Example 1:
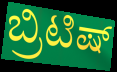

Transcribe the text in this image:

ಬ್ರಿಟಿಷ್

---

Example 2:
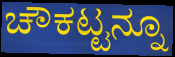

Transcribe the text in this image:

ಚೌಕಟ್ಟನ್ನೂ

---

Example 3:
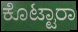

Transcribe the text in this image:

ಕೊಟ್ಟಾರಾ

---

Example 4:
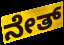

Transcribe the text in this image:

ನೇತ್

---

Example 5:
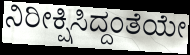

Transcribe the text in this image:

ನಿರೀಕ್ಷಿಸಿದ್ದಂತೆಯೇ